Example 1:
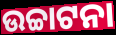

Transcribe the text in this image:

ଉଚ୍ଚାଟନା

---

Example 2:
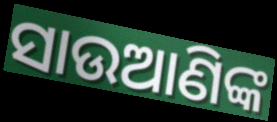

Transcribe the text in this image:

ସାଉଆଣିଙ୍କ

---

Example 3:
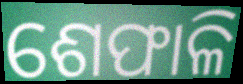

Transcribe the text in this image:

ଶେଫାଳି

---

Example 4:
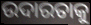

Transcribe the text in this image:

ଉଦାରତାକୁ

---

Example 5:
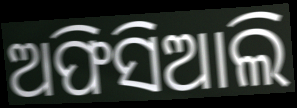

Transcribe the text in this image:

ଅଫିସିଆଲି